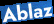
Ablaz